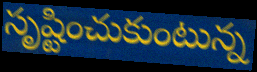
సృష్టించుకుంటున్న